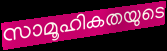
സാമൂഹികതയുടെ